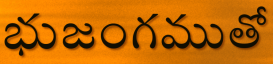
భుజంగముతో